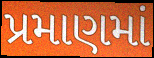
પ્રમાણમાં